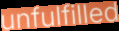
unfulfilled